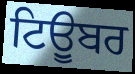
ਟਿਊੁਬਰ